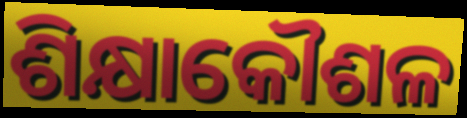
ଶିକ୍ଷାକୌଶଳ